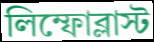
লিম্ফোব্লাস্ট